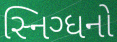
સ્નિગ્ધનો